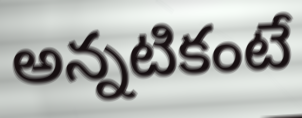
అన్నటికంటే